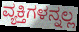
ವ್ಯಕ್ತಿಗಳನ್ನಲ್ಲ